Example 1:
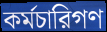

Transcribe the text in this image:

কর্মচারিগণ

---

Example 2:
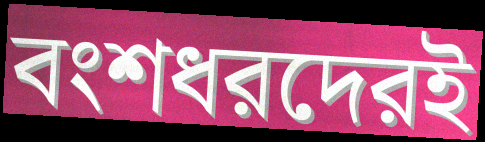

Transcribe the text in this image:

বংশধরদেরই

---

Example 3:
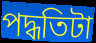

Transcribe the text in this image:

পদ্ধতিটা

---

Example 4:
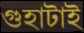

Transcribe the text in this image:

গুহাটাই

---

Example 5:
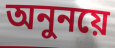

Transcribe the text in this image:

অনুনয়ে